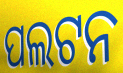
ପଲଟନ